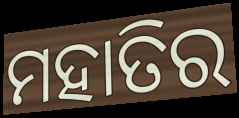
ମହାତିର